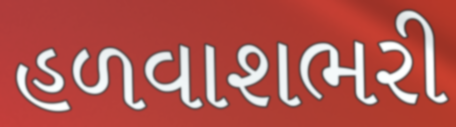
હળવાશભરી